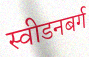
स्वीडनबर्ग